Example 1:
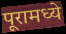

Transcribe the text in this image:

पूरामध्ये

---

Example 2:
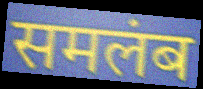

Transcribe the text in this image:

समलंब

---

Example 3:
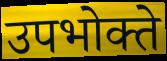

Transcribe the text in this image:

उपभोक्ते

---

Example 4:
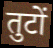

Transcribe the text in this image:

तुटों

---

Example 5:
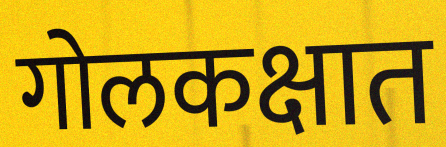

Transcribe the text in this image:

गोलकक्षात